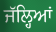
ਜੱਲ੍ਹਿਆਂ